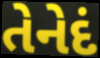
તેનેદં